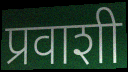
प्रवाशी